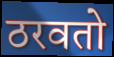
ठरवतो